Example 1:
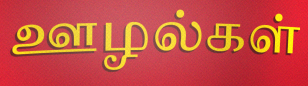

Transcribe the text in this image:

ஊழல்கள்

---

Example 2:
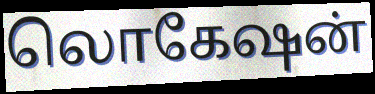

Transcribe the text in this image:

லொகேஷன்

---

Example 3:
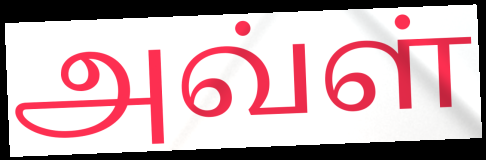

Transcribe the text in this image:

அவ்ள்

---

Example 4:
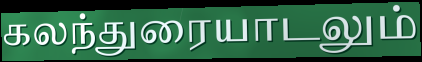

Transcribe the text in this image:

கலந்துரையாடலும்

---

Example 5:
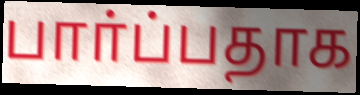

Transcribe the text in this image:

பார்ப்பதாக